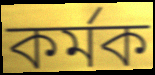
কৰ্মক